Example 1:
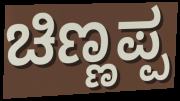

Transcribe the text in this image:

ಚಿಣ್ಣಪ್ಪ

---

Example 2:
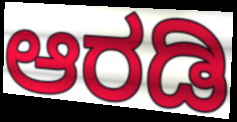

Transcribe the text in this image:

ಆರಡಿ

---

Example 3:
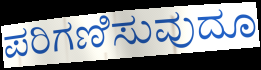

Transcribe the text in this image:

ಪರಿಗಣಿಸುವುದೂ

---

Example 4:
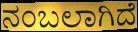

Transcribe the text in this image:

ನಂಬಲಾಗಿದೆ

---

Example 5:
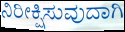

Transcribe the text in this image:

ನಿರೀಕ್ಷಿಸುವುದಾಗಿ